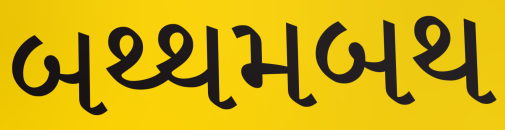
બથ્થમબથ